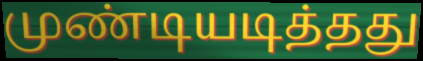
முண்டியடித்தது